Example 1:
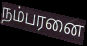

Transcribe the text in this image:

நம்பரனை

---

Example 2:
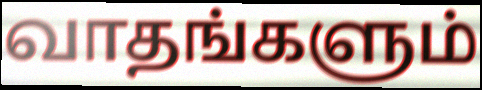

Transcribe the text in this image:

வாதங்களும்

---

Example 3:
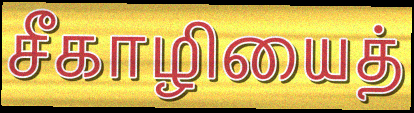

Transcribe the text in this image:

சீகாழியைத்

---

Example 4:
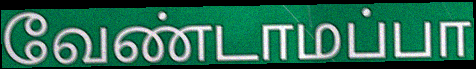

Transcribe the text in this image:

வேண்டாமப்பா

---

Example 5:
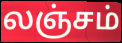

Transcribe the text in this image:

லஞ்சம்